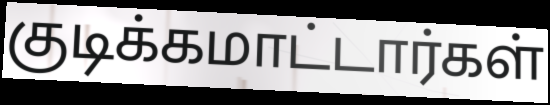
குடிக்கமாட்டார்கள்